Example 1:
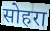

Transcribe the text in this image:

सोहरा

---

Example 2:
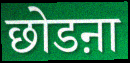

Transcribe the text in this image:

छोडऩा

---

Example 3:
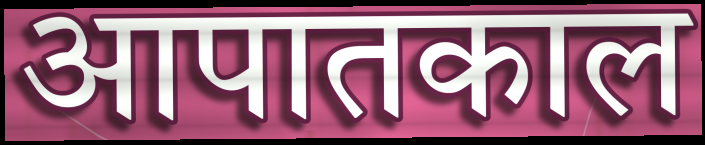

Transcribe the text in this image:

आपातकाल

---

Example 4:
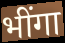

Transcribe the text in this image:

भींगा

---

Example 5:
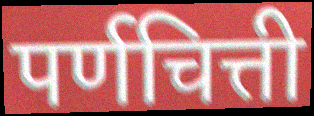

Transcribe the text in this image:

पर्णचित्ती